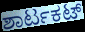
ಶಾರ್ಟಕಟ್